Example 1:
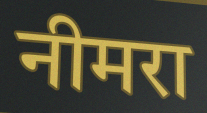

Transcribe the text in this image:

नीमरा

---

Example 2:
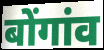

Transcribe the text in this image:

बोंगांव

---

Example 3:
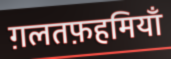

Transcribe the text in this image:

ग़लतफ़हमियाँ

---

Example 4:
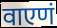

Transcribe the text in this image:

वाएणं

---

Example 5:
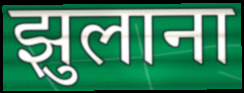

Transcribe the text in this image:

झुलाना